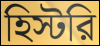
হিস্টরি